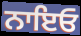
ਨਾਇਓ